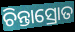
ଚିନ୍ତାସ୍ରୋତ